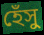
হেঁসু